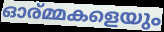
ഓര്മ്മകളെയും